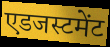
एडजस्टमेंट